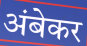
अंबेकर